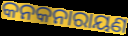
କନକନାରାୟଣ